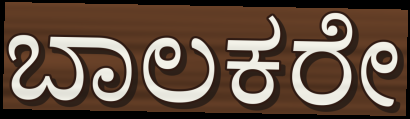
ಬಾಲಕರೇ